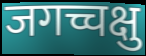
जगच्चक्षु